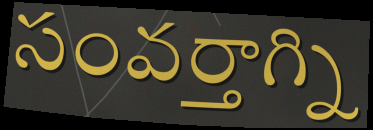
సంవర్తాగ్ని